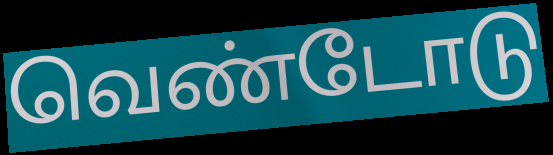
வெண்டோடு